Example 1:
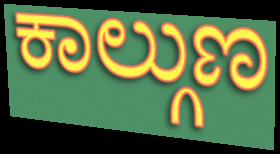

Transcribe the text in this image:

ಕಾಲ್ಗುಣ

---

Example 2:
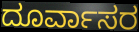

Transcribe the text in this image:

ದೂರ್ವಾಸರ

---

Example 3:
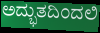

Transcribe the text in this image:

ಅದ್ಭುತದಿಂದಲಿ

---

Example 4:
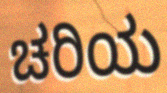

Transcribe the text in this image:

ಚರಿಯ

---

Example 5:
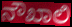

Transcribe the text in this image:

ನೌಖಾಲಿ